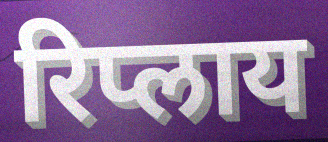
रिप्लाय